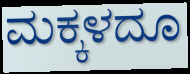
ಮಕ್ಕಳದೂ